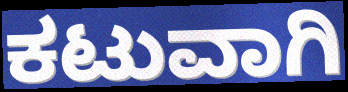
ಕಟುವಾಗಿ